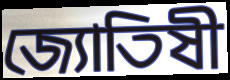
জ্যোতিষী